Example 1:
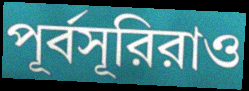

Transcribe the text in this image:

পূর্বসূরিরাও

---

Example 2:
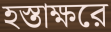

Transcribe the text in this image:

হস্তাক্ষরে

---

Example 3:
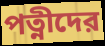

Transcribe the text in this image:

পত্নীদের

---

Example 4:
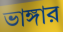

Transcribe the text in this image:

ভাঙ্গার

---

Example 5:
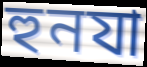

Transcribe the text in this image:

হুনযা